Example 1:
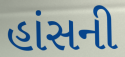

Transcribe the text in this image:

હાંસની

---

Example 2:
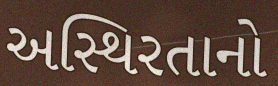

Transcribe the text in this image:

અસ્થિરતાનો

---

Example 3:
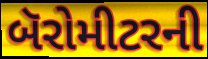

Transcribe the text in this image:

બૅરોમીટરની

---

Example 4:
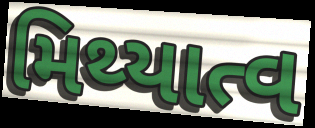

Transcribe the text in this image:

મિથ્યાત્વ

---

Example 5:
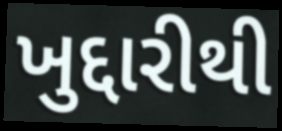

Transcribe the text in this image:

ખુદ્દારીથી